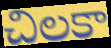
చిలకా